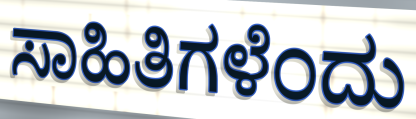
ಸಾಹಿತಿಗಳೆಂದು